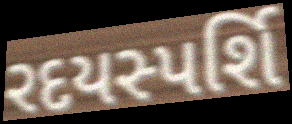
રદયસ્પર્શિ